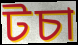
টচা